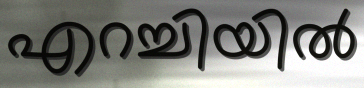
എറച്ചിയിൽ